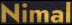
Nimal